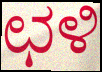
ಛಳಿ